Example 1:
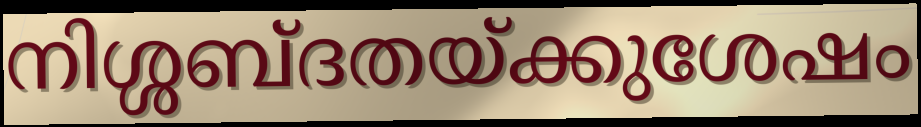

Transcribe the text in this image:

നിശ്ശബ്ദതയ്ക്കുശേഷം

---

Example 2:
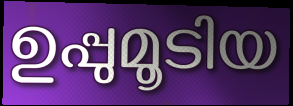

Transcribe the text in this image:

ഉപ്പുമൂടിയ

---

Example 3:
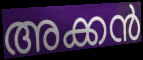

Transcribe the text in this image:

അക്കൻ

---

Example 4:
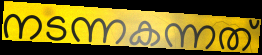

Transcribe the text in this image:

നടന്നകന്നത്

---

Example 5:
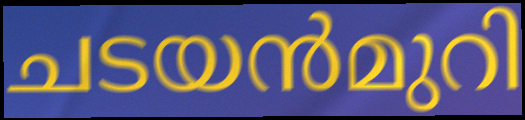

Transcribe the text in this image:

ചടയൻമുറി